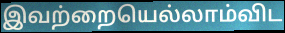
இவற்றையெல்லாம்விட